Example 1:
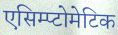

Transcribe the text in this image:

एसिम्प्टोमेटिक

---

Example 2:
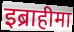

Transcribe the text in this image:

इब्राहीमा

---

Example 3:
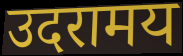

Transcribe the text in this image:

उदरामय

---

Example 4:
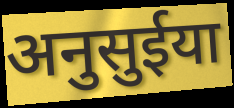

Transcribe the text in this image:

अनुसुईया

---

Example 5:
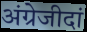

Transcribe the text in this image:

अंग्रेजीदां